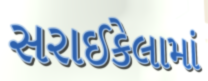
સરાઈકેલામાં